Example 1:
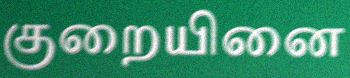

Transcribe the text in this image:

குறையினை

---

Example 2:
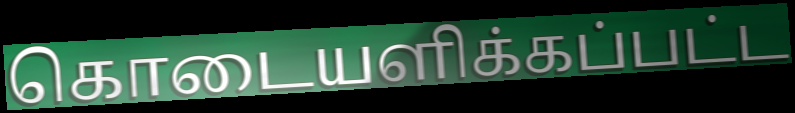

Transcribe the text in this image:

கொடையளிக்கப்பட்ட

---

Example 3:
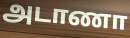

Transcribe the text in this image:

அடாணா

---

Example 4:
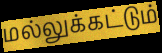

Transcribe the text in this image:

மல்லுக்கட்டும்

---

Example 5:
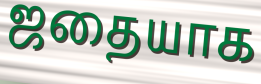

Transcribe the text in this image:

ஜதையாக